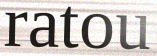
ratou